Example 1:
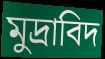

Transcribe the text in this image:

মুদ্ৰাবিদ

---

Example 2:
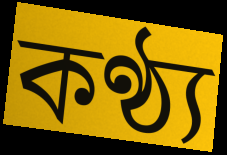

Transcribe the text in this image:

কণ্ঠ্য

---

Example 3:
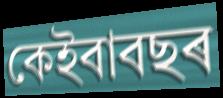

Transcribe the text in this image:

কেইবাবছৰ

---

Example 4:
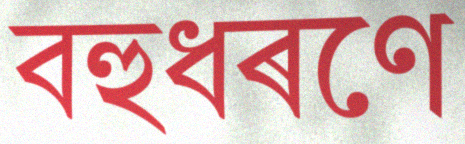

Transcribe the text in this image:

বহুধৰণে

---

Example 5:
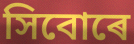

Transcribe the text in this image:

সিবোৰে